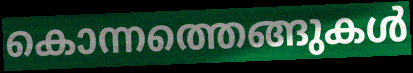
കൊന്നത്തെങ്ങുകൾ